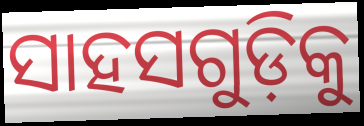
ସାହସଗୁଡ଼ିକୁ